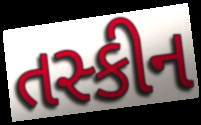
તસ્કીન